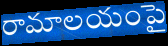
రామాలయంపై